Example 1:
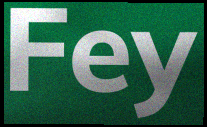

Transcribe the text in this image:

Fey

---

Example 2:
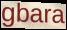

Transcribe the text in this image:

gbara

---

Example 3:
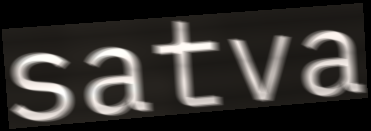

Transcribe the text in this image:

satva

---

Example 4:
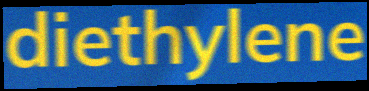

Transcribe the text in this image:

diethylene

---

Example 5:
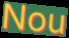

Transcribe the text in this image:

Nou